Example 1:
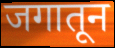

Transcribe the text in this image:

जगातून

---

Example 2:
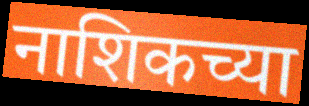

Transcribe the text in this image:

नाशिकच्या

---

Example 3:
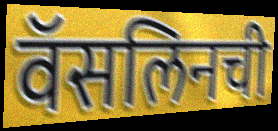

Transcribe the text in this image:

वॅसलिनची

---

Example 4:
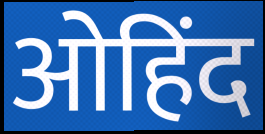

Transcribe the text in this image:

ओहिंद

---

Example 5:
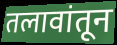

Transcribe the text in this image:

तलावांतून